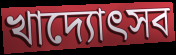
খাদ্যোৎসব